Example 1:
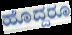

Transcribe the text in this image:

ಹೊದ್ದರೂ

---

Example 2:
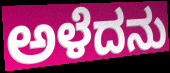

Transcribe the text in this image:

ಅಳೆದನು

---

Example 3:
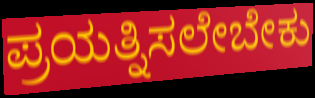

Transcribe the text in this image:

ಪ್ರಯತ್ನಿಸಲೇಬೇಕು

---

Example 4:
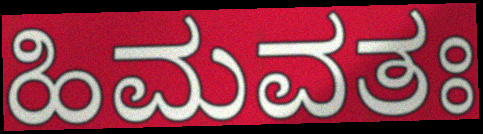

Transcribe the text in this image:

ಹಿಮವತಃ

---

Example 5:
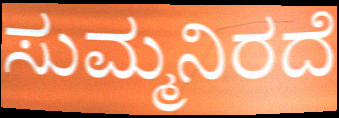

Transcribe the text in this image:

ಸುಮ್ಮನಿರದೆ